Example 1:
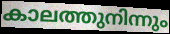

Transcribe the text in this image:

കാലത്തുനിന്നും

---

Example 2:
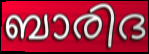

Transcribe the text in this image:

ബാരിദ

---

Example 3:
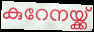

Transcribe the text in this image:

കുറേനയ്ക്ക്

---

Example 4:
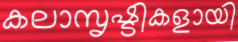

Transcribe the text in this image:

കലാസൃഷ്ടികളായി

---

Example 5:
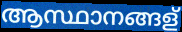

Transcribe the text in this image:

ആസ്ഥാനങ്ങള്